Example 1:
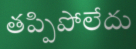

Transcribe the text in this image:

తప్పిపోలేదు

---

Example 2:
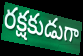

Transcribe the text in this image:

రక్షకుడుగా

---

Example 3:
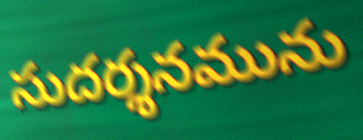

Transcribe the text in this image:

సుదర్శనమును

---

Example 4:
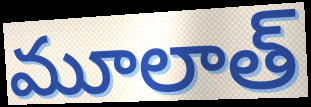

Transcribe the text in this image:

మూలాత్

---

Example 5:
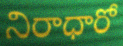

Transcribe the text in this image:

నిరాధారో